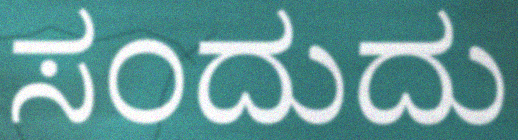
ಸಂದುದು